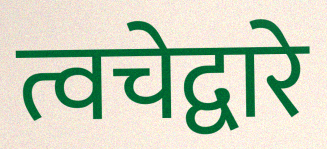
त्वचेद्वारे